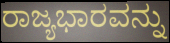
ರಾಜ್ಯಭಾರವನ್ನು